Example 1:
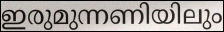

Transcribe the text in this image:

ഇരുമുന്നണിയിലും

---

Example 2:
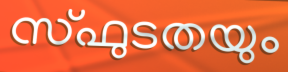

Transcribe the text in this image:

സ്ഫുടതയും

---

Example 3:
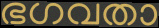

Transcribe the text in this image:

ഭഗവതാ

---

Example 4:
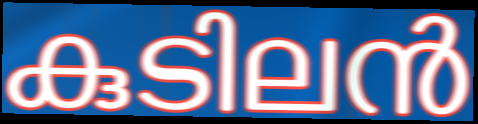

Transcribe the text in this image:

കുടിലൻ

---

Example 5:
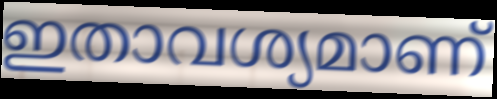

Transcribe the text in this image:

ഇതാവശ്യമാണ്